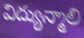
విద్యున్మాలి